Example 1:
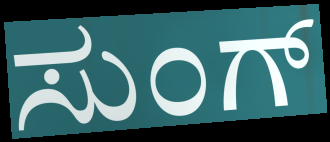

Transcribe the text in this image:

ಸುಂಗ್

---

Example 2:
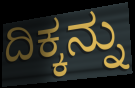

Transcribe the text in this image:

ದಿಕ್ಕನ್ನು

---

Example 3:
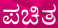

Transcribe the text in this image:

ಪಚಿತ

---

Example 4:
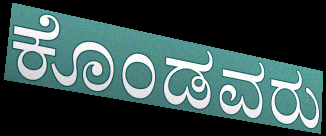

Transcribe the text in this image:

ಕೊಂಡವರು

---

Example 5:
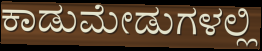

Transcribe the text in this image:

ಕಾಡುಮೇಡುಗಳಲ್ಲಿ